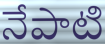
నేపాటి